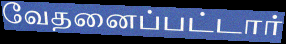
வேதனைப்பட்டார்